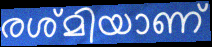
രശ്മിയാണ്